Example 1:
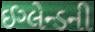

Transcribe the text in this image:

ઈગ્લેન્ડની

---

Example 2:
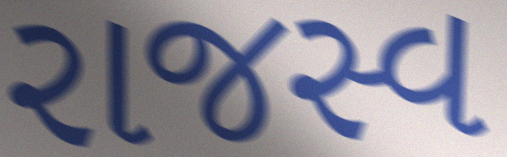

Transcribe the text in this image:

રાજસ્વ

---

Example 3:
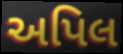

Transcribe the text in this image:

અપિલ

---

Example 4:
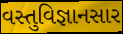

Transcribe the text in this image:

વસ્તુવિજ્ઞાનસાર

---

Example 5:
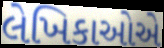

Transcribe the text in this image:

લેખિકાઓએ